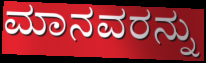
ಮಾನವರನ್ನು